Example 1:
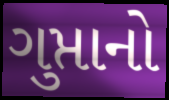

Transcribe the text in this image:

ગુપ્તાનો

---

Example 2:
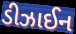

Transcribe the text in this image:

ડીઝાઈન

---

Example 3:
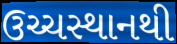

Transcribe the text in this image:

ઉચ્ચસ્થાનથી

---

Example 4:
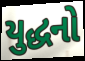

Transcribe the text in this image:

યુદ્ધનો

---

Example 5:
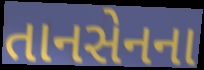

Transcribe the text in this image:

તાનસેનના